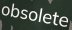
obsolete